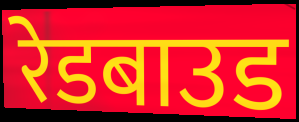
रेडबाउड